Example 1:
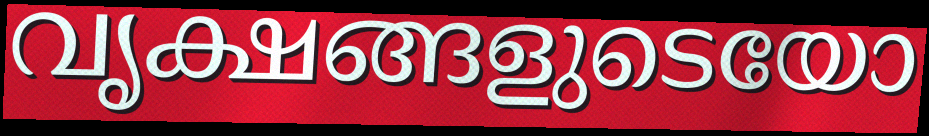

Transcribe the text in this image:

വൃക്ഷങ്ങളുടെയോ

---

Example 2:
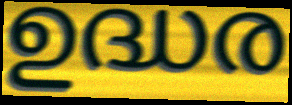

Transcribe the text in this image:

ഉദ്ധര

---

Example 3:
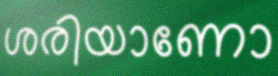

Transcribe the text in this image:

ശരിയാണോ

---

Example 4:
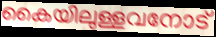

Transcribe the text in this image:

കൈയിലുള്ളവനോട്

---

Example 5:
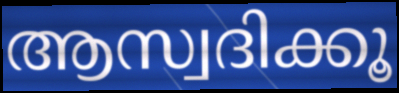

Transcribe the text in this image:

ആസ്വദിക്കൂ